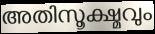
അതിസൂക്ഷ്മവും